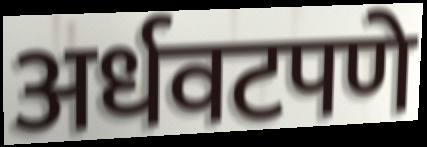
अर्धवटपणे